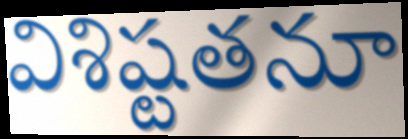
విశిష్టతనూ